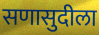
सणासुदीला